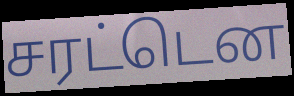
சரட்டென